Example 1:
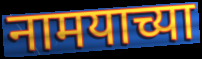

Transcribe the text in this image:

नामयाच्या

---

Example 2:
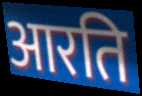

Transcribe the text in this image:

आरति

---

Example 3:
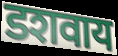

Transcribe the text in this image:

डशवाय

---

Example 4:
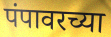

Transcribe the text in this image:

पंपावरच्या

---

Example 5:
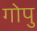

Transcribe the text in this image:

गोपु